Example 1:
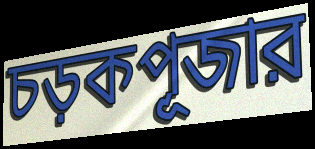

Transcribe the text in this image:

চড়কপূজার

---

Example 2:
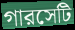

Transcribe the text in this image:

গারসেটি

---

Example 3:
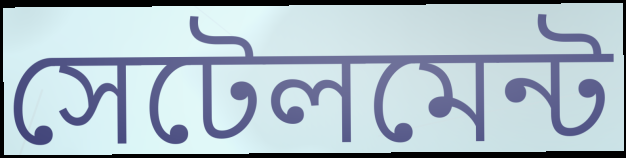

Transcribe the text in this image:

সেটেলমেন্ট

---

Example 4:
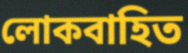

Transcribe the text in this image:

লোকবাহিত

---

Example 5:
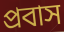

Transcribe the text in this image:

প্রবাস